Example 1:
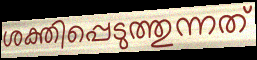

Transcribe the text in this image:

ശക്തിപ്പെടുത്തുന്നത്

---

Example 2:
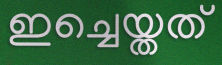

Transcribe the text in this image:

ഇച്ചെയ്തത്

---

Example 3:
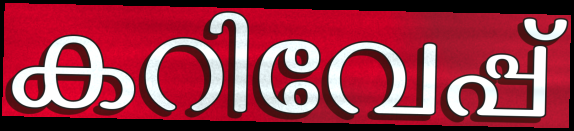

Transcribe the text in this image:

കറിവേപ്പ്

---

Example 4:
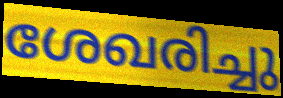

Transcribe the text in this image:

ശേഖരിച്ചു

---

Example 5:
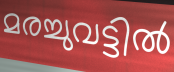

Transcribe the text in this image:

മരച്ചുവട്ടിൽ